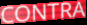
CONTRA